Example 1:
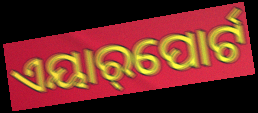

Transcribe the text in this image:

ଏୟାର୍‌ପୋର୍ଟ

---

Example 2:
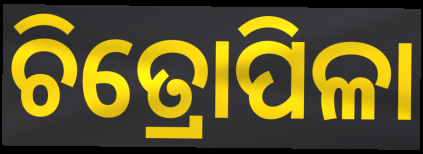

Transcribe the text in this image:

ଚିତ୍ରୋପିଳା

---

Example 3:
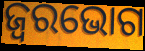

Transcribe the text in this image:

ଜ୍ୱରଭୋଗ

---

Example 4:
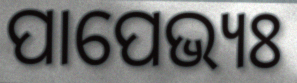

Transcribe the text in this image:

ପାପେଭ୍ୟଃ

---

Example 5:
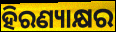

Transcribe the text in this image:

ହିରଣ୍ୟାକ୍ଷର